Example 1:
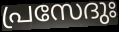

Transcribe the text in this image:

പ്രസേദുഃ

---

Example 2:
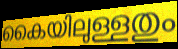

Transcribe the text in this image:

കൈയിലുള്ളതും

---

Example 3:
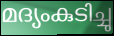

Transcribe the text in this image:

മദ്യംകുടിച്ചു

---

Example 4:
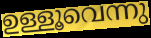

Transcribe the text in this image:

ഉള്ളൂവെന്നു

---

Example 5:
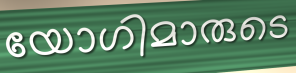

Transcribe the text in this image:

യോഗിമാരുടെ